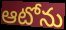
ఆటోను